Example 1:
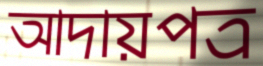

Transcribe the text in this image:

আদায়পত্র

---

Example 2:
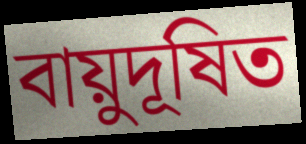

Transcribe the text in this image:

বায়ুদূষিত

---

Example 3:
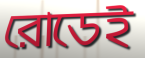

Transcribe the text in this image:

রোডেই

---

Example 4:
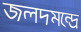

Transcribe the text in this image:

জলদমন্দ্রে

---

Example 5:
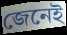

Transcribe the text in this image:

জেনেই